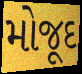
મોજૂદ